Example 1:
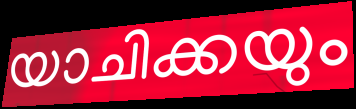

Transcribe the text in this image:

യാചിക്കയും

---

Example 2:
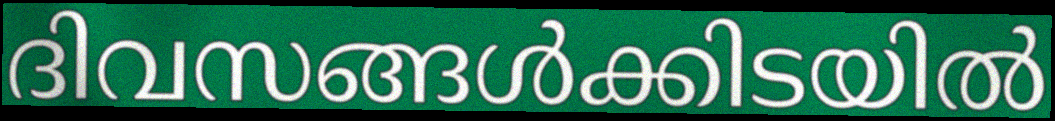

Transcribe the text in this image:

ദിവസങ്ങൾക്കിടയിൽ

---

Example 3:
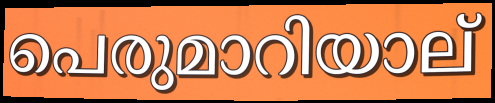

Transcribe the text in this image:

പെരുമാറിയാല്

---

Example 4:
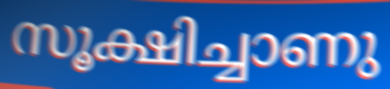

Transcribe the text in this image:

സൂക്ഷിച്ചാണു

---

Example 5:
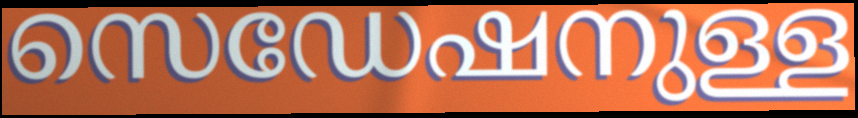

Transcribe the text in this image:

സെഡേഷനുള്ള